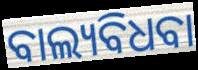
ବାଲ୍ୟବିଧବା